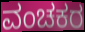
ವಂಚಕರ